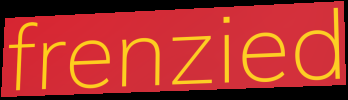
frenzied